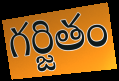
గర్జితం